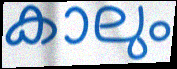
കാലും